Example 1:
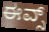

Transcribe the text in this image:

ಈವ್ಸ್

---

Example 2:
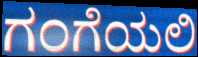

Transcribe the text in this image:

ಗಂಗೆಯಲಿ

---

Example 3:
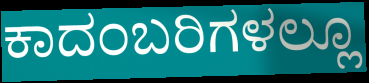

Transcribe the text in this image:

ಕಾದಂಬರಿಗಳಲ್ಲೂ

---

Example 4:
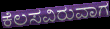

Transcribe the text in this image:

ಕೆಲಸವಿರುವಾಗ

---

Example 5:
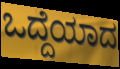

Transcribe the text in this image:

ಒದ್ದೆಯಾದ